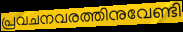
പ്രവചനവരത്തിനുവേണ്ടി